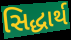
સિદ્ધાર્થ